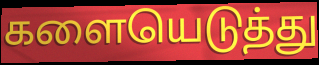
களையெடுத்து